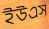
ইউএস